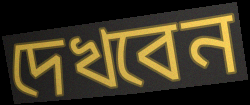
দেখবেন